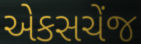
એકસચેંજ